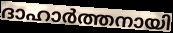
ദാഹാർത്തനായി